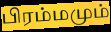
பிரம்மமும்